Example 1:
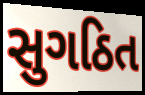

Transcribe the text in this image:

સુગઠિત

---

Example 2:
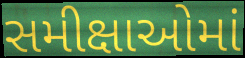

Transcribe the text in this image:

સમીક્ષાઓમાં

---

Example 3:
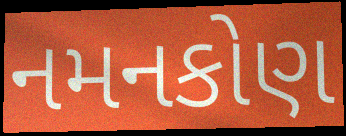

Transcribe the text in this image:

નમનકોણ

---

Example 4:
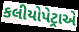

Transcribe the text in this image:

કલીયોપેટ્રાએ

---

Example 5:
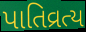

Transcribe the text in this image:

પાતિવ્રત્ય